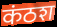
कंठश